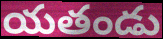
యతండు